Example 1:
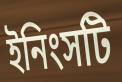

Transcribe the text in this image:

ইনিংসটি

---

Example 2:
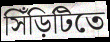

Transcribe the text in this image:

সিঁড়িটিতে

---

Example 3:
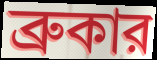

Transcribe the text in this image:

ব্রুকার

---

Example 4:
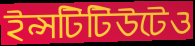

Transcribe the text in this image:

ইন্সটিটিউটেও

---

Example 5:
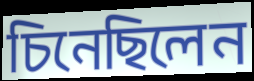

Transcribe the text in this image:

চিনেছিলেন